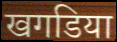
खगडिया